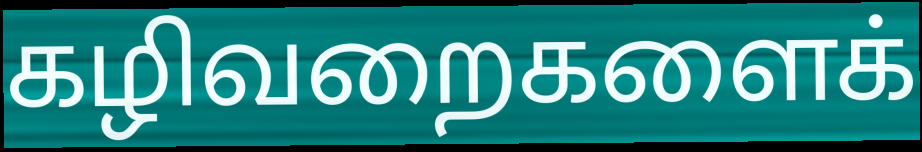
கழிவறைகளைக்